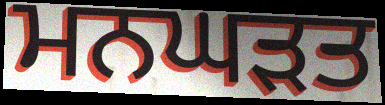
ਮਨਘੜਤ